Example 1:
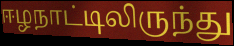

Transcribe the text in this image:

ஈழநாட்டிலிருந்து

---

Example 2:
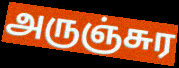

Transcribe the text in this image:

அருஞ்சுர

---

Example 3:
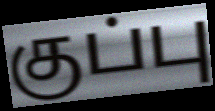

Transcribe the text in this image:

குப்பு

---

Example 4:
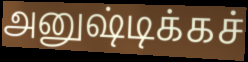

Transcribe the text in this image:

அனுஷ்டிக்கச்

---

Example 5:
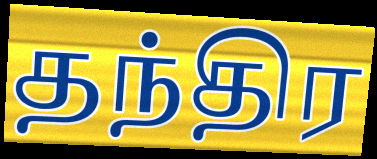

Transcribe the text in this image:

தந்திர